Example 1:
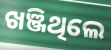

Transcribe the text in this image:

ଖଞ୍ଜିଥିଲେ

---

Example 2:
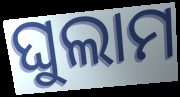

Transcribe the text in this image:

ଘୁଲାମ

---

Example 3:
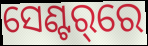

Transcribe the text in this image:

ସେଣ୍ଟର୍‌ରେ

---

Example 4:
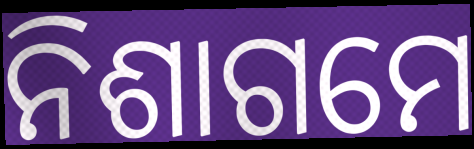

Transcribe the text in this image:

ନିଶାଗମେ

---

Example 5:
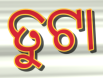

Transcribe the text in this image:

ତୁଟା